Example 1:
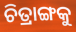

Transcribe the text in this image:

ଚିତ୍ରାଙ୍ଗକୁ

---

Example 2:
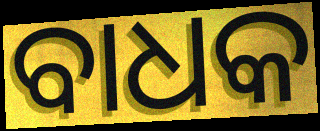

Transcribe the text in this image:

ବାଧକ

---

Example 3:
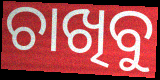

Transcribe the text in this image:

ଚାଖିବୁ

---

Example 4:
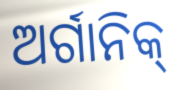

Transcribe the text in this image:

ଅର୍ଗାନିକ୍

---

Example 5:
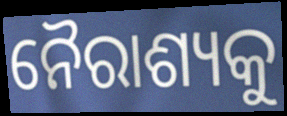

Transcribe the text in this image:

ନୈରାଶ୍ୟକୁ